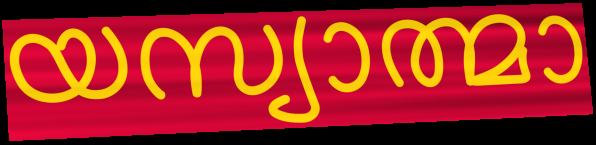
യസ്യാത്മാ